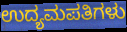
ಉದ್ಯಮಪತಿಗಳು